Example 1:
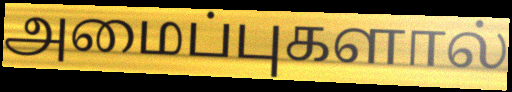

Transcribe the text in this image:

அமைப்புகளால்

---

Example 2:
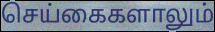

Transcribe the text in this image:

செய்கைகளாலும்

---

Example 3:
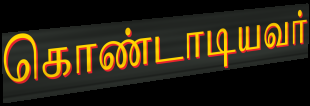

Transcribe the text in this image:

கொண்டாடியவர்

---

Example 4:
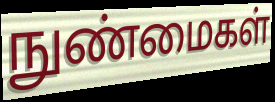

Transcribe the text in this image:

நுண்மைகள்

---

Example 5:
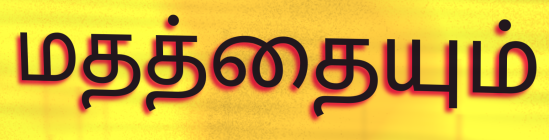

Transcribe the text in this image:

மதத்தையும்